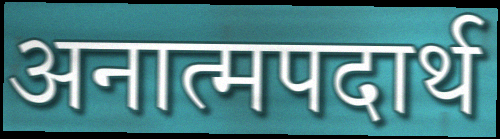
अनात्मपदार्थ